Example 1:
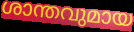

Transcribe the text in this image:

ശാന്തവുമായ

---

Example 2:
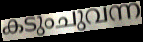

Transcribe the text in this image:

കടുംചുവന്ന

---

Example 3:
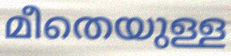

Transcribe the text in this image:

മീതെയുള്ള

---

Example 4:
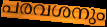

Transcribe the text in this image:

പരവശനും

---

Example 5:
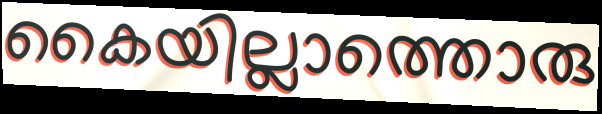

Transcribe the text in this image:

കൈയില്ലാത്തൊരു